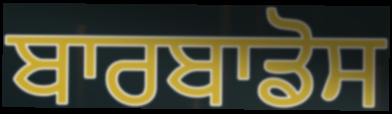
ਬਾਰਬਾਡੋਸ